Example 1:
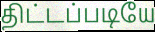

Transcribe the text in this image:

திட்டப்படியே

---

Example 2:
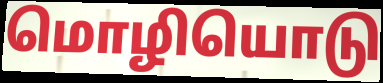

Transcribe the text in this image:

மொழியொடு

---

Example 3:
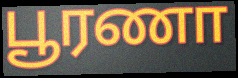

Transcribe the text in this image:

பூரணா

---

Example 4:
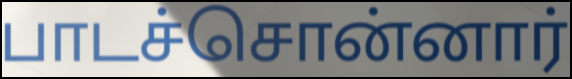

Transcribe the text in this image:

பாடச்சொன்னார்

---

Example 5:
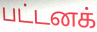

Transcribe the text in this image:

பட்டனக்